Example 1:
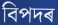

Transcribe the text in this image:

বিপদৰ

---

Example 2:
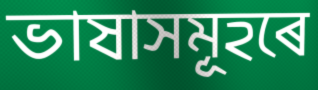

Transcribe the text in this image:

ভাষাসমূহৰে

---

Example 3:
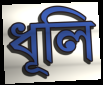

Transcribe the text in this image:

ধূলি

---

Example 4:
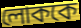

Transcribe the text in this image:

লোককে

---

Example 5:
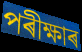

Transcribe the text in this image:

পৰীক্ষাৰ